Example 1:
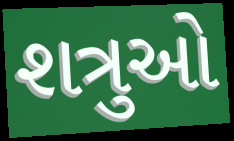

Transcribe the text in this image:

શત્રુઓ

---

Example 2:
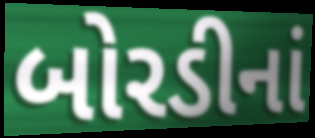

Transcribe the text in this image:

બોરડીનાં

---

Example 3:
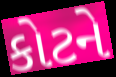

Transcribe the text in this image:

કોટને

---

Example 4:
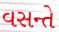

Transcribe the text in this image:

વસન્તે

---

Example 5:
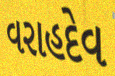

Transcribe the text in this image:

વરાહદેવ